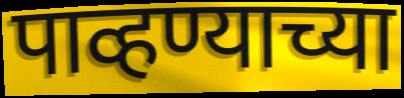
पाव्हण्याच्या